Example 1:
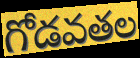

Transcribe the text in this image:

గోడవతల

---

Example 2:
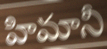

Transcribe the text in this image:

హిమానీ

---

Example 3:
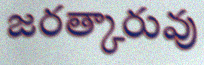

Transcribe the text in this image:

జరత్కారువు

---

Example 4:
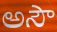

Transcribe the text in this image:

అసౌ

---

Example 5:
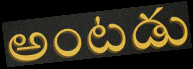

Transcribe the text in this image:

అంటడు